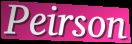
Peirson